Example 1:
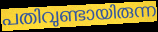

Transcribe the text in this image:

പതിവുണ്ടായിരുന്ന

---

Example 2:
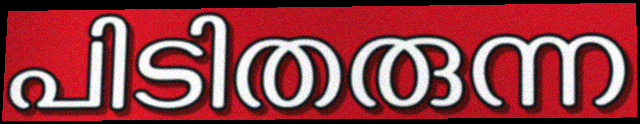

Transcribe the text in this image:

പിടിതരുന്ന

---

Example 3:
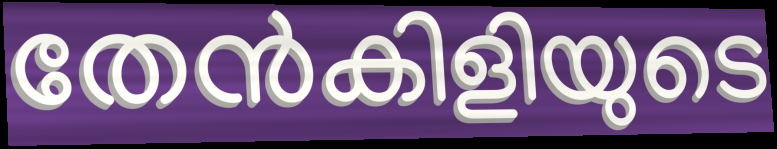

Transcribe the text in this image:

തേൻകിളിയുടെ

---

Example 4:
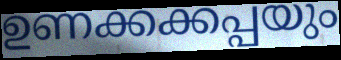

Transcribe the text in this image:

ഉണക്കക്കപ്പയും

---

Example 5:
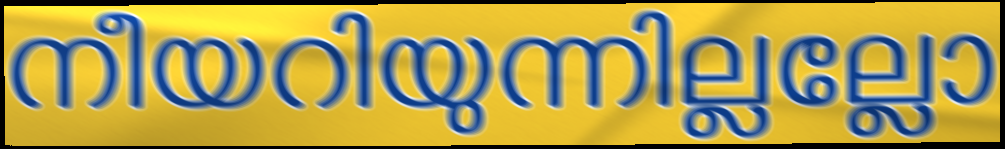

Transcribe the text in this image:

നീയറിയുന്നില്ലല്ലോ